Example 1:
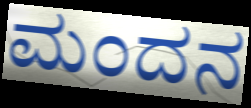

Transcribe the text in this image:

ಮಂದನ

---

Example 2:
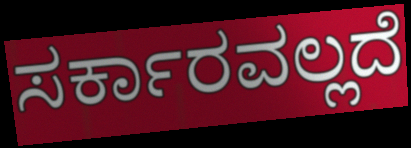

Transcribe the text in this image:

ಸರ್ಕಾರವಲ್ಲದೆ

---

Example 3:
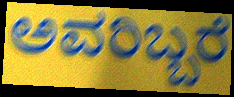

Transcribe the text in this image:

ಅವರಿಬ್ಬರೆ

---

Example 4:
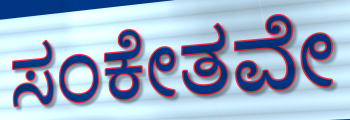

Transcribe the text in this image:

ಸಂಕೇತವೇ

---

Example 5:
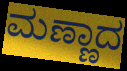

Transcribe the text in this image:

ಮಣ್ಣಾದ